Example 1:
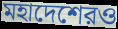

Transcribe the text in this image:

মহাদেশেরও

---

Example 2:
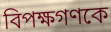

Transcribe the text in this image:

বিপক্ষগণকে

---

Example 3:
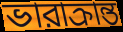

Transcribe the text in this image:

ভারাক্রান্ত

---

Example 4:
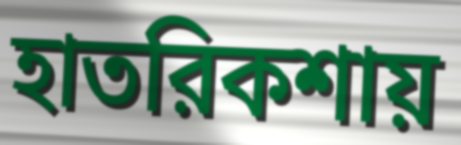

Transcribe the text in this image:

হাতরিকশায়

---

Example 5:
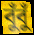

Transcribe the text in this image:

বুঁবুঁ